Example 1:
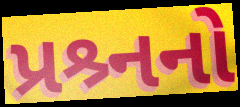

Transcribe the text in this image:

પ્રશ્ર્નનો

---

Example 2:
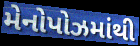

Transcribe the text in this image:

મેનોપોઝમાંથી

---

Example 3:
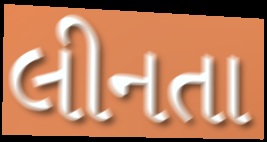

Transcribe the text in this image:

લીનતા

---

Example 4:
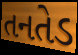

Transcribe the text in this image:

તનતેડ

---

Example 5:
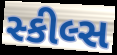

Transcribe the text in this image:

સ્કીલ્સ